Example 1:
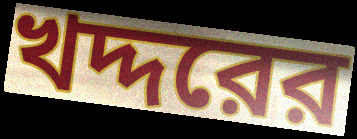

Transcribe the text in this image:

খদ্দরের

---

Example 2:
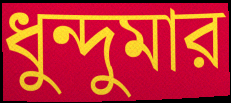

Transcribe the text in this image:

ধুন্দুমার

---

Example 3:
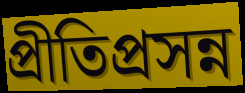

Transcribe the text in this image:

প্রীতিপ্রসন্ন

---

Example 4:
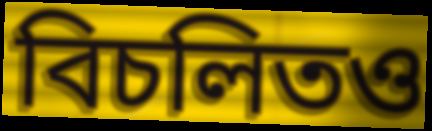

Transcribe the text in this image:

বিচলিতও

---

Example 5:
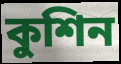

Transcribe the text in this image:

কুশিন